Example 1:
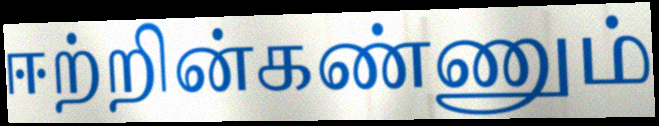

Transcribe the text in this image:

ஈற்றின்கண்ணும்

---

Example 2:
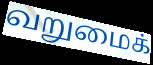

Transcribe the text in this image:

வறுமைக்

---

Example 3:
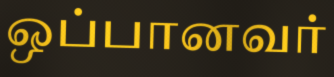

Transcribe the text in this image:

ஒப்பானவர்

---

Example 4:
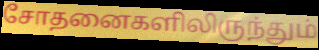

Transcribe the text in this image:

சோதனைகளிலிருந்தும்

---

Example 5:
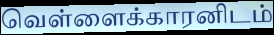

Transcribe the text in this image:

வெள்ளைக்காரனிடம்